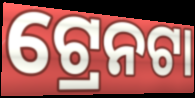
ଟ୍ରେନଟା